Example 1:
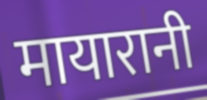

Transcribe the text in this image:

मायारानी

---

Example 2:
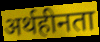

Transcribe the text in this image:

अर्थहीनता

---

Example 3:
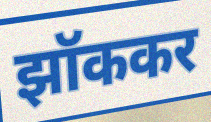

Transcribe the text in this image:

झॉककर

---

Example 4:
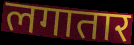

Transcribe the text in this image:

लगातार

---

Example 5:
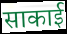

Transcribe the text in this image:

साकाई